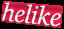
helike